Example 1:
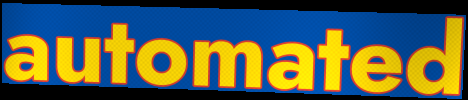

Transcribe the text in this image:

automated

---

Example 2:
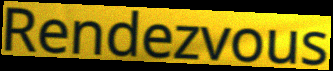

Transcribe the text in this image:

Rendezvous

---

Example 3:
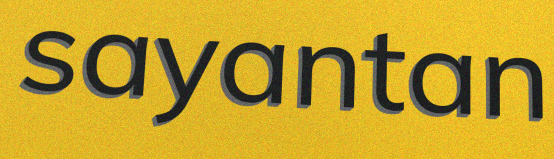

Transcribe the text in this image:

sayantan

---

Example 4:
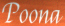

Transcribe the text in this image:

Poona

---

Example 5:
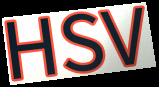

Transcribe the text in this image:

HSV